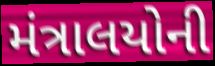
મંત્રાલયોની